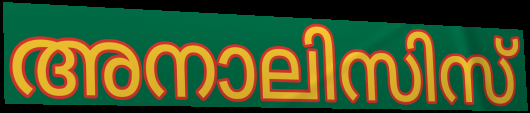
അനാലിസിസ്